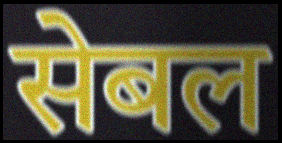
सेबल